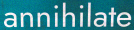
annihilate